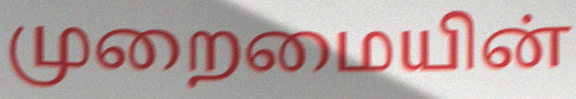
முறைமையின்